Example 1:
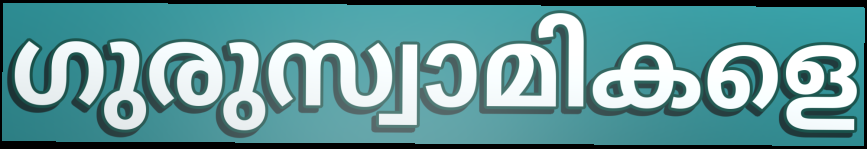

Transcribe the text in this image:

ഗുരുസ്വാമികളെ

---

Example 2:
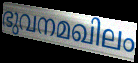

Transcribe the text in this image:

ഭുവനമഖിലം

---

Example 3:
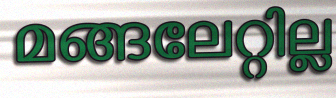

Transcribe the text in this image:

മങ്ങലേറ്റില്ല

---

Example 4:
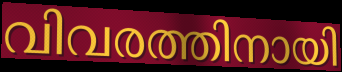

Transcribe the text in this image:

വിവരത്തിനായി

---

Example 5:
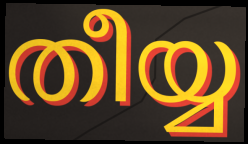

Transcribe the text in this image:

തീയ്യ